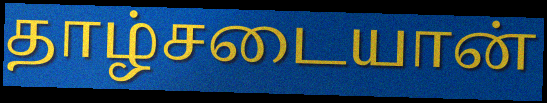
தாழ்சடையான்